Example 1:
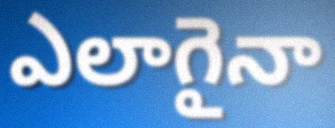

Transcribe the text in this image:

ఎలాగైనా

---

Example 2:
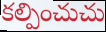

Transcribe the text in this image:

కల్పించుచు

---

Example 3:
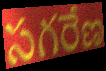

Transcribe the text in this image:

సగరేణ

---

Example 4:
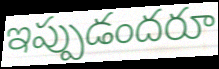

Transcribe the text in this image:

ఇప్పుడందరూ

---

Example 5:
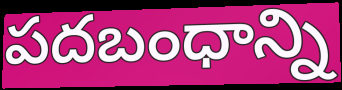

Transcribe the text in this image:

పదబంధాన్ని